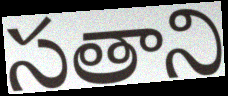
సతాని